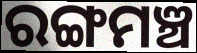
ରଙ୍ଗମଞ୍ଚ